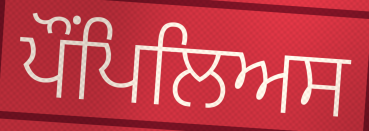
ਪੌਂਪਿਲਿਅਸ